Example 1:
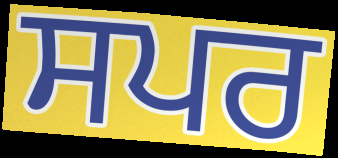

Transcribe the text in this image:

ਸਪਰ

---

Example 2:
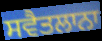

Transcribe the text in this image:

ਸਵੈਤਲਾਨਾ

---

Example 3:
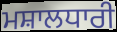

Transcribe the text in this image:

ਮਸ਼ਾਲਧਾਰੀ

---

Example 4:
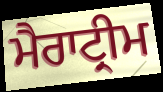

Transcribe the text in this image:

ਮੈਰਾਟ੍ਰੀਮ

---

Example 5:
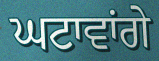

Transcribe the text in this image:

ਘਟਾਵਾਂਗੇ